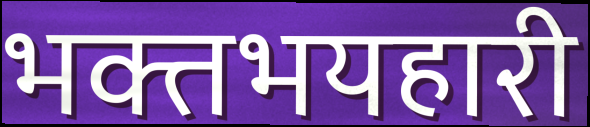
भक्तभयहारी